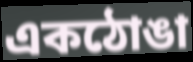
একঠোঙা